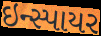
ઇન્સ્પાયર